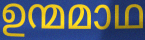
ഉന്മമാഥ